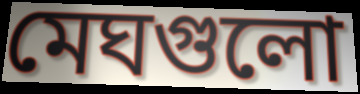
মেঘগুলো